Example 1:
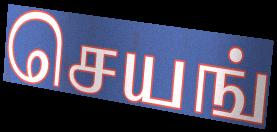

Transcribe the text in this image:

செயங்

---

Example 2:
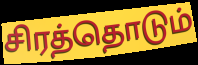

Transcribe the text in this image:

சிரத்தொடும்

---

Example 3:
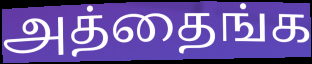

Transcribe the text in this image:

அத்தைங்க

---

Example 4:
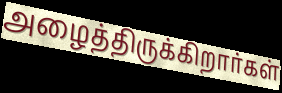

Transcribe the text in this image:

அழைத்திருக்கிறார்கள்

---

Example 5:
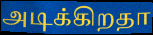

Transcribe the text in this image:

அடிக்கிறதா